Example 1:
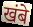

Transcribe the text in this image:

खंबे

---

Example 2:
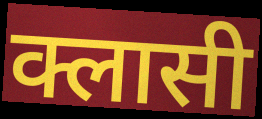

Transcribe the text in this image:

क्लासी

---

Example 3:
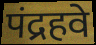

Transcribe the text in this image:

पंद्रहवे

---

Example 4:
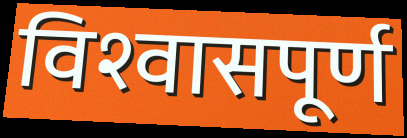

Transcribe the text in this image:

विश्वासपूर्ण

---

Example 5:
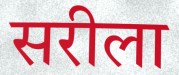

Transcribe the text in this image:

सरीला